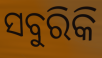
ସବୁରିକି